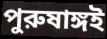
পুরুষাঙ্গই